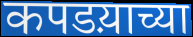
कपडय़ाच्या